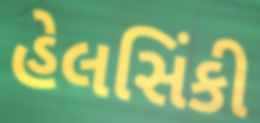
હેલસિંકી